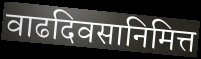
वाढदिवसानिमित्त